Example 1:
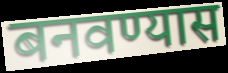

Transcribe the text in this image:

बनवण्यास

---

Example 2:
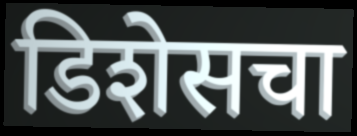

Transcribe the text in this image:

डिशेसचा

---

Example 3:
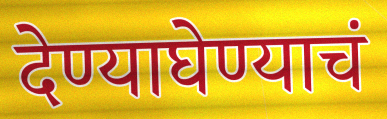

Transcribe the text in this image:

देण्याघेण्याचं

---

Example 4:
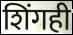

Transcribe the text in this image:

शिंगही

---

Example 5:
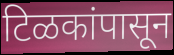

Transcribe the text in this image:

टिळकांपासून